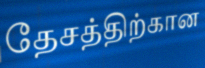
தேசத்திற்கான